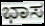
ಭಾಸ